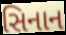
સિનાન